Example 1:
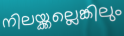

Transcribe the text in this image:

നിലയ്ക്കല്ലെങ്കിലും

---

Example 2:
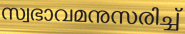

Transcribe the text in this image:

സ്വഭാവമനുസരിച്ച്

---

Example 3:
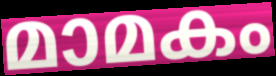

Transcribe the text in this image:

മാമകം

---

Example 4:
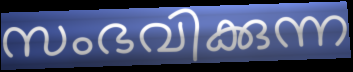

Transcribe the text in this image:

സംഭവിക്കുന്ന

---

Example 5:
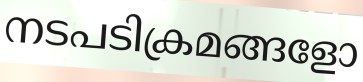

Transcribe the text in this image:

നടപടിക്രമങ്ങളോ